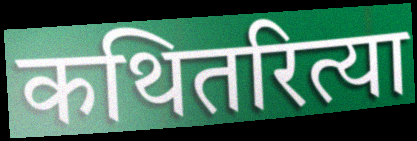
कथितरित्या